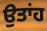
ਉਤਾਂਹ